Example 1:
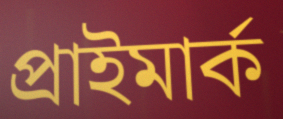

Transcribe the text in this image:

প্রাইমার্ক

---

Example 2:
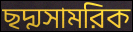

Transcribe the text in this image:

ছদ্মসামরিক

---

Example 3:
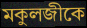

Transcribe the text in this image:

মকুলজীকে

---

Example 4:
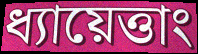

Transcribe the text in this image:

ধ্যায়েত্তাং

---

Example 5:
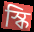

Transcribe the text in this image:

স্কি